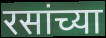
रसांच्या